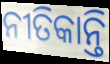
ନୀତିକାନ୍ତି